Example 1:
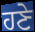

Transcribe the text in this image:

ਹਣੇ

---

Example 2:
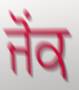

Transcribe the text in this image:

ਜੋਂਕ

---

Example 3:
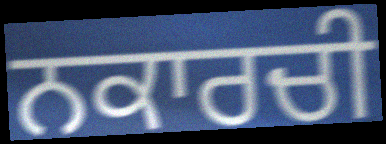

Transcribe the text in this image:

ਨਕਾਰਚੀ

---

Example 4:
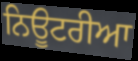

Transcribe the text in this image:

ਨਿਊਟਰੀਆ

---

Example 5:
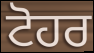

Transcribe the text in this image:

ਟੋਹਰ